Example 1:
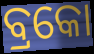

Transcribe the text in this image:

ବ୍ରକୋ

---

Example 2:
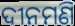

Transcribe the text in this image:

ଦୀନମଣି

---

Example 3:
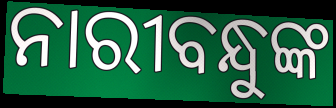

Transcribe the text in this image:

ନାରୀବନ୍ଧୁଙ୍କ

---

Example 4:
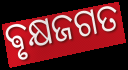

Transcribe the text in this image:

ଵୃକ୍ଷଜଗତ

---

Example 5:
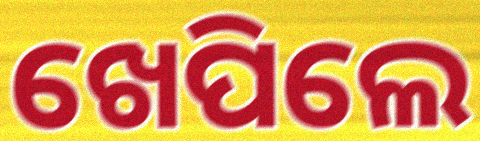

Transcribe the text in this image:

ଖେପିଲେ